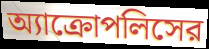
অ্যাক্রোপলিসের